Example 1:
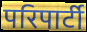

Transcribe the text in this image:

परिपार्टी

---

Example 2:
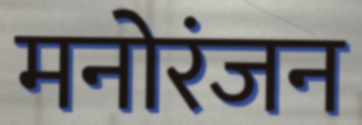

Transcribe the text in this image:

मनोरंजन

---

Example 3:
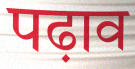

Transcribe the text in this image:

पढ़ाव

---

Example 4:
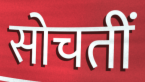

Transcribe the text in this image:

सोचतीं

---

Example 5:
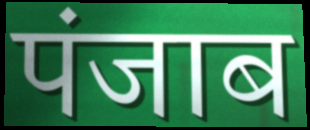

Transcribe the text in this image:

पंजाब